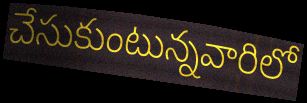
చేసుకుంటున్నవారిలో